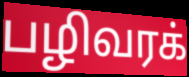
பழிவரக்